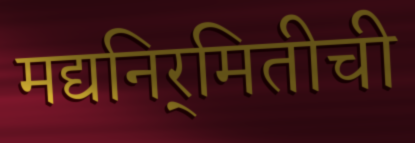
मद्यनिर्मितीची